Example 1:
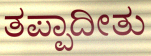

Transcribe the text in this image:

ತಪ್ಪಾದೀತು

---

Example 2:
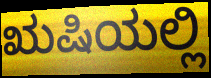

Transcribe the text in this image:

ಋಷಿಯಲ್ಲಿ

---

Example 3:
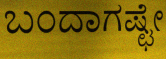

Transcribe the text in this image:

ಬಂದಾಗಷ್ಟೇ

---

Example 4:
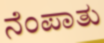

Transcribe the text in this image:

ನೆಂಪಾತು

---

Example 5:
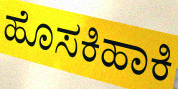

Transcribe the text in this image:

ಹೊಸಕಿಹಾಕಿ